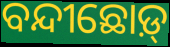
ବନ୍ଦୀଛୋଡ଼୍